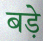
बड़े